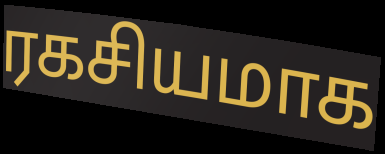
ரகசியமாக